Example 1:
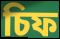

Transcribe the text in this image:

চিফ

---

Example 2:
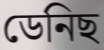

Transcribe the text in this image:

ডেনিছ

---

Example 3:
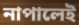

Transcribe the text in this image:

নাপালেই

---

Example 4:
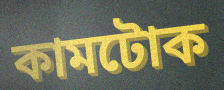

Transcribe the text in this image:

কামটোক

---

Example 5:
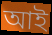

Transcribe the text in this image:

আই